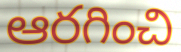
ఆరగించి